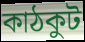
কাঠকুট